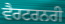
ਵੈਰਟਰਨਰੀ